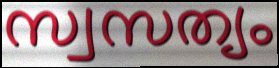
സ്വസത്യം